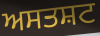
ਅਸਤਸ਼ਟ